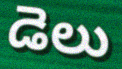
డెలు